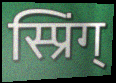
स्प्रिंग्